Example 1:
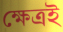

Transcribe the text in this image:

ক্ষেত্রই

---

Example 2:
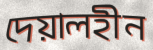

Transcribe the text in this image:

দেয়ালহীন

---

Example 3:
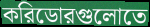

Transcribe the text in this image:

করিডোরগুলোতে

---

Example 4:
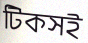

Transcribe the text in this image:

টিকসই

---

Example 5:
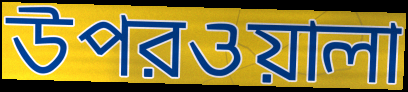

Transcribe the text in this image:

উপরওয়ালা